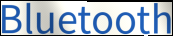
Bluetooth